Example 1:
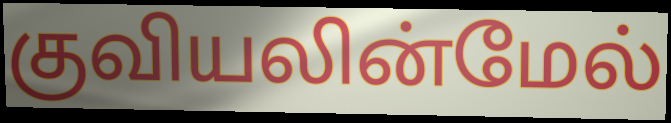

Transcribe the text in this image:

குவியலின்மேல்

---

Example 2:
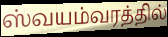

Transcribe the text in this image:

ஸ்வயம்வரத்தில்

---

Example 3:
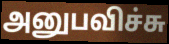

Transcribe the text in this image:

அனுபவிச்சு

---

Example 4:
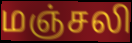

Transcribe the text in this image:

மஞ்சலி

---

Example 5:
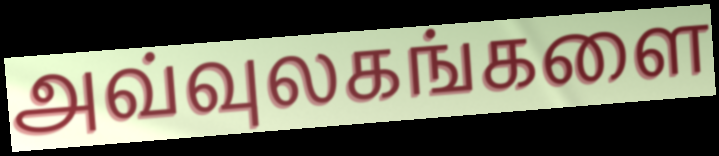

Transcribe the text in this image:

அவ்வுலகங்களை